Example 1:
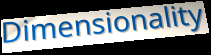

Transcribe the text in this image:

Dimensionality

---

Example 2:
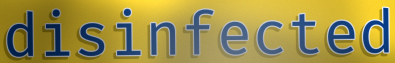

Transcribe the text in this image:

disinfected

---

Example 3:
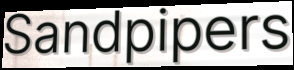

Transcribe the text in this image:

Sandpipers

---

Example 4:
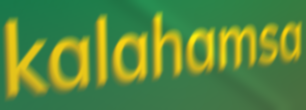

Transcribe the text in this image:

kalahamsa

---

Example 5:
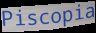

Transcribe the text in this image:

Piscopia